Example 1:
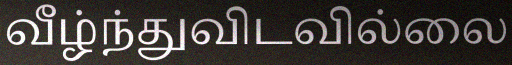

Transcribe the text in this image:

வீழ்ந்துவிடவில்லை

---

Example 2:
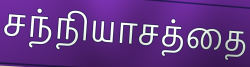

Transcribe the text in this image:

சந்நியாசத்தை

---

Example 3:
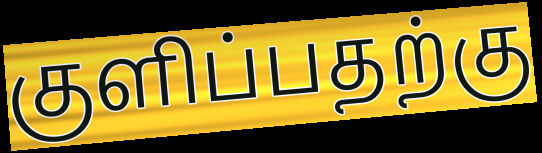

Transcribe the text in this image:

குளிப்பதற்கு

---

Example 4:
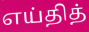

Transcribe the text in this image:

எய்தித்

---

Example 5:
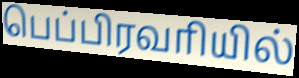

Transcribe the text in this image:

பெப்பிரவரியில்